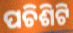
ପଚିଶିଟି